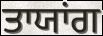
ਤਾਯਾਂਗ